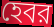
হেবর